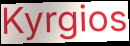
Kyrgios